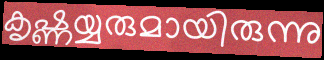
കൃഷ്ണയ്യരുമായിരുന്നു